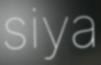
siya